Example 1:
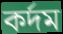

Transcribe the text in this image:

কর্দম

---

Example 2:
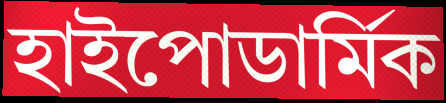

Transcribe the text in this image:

হাইপোডার্মিক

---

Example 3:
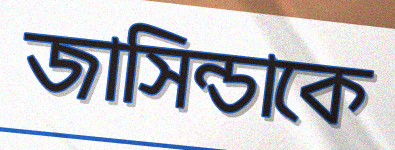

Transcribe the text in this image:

জাসিন্ডাকে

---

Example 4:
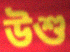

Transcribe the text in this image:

উশু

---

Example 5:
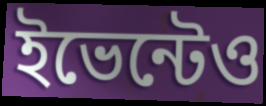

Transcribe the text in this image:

ইভেন্টেও